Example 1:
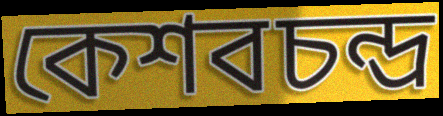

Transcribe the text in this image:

কেশবচন্দ্র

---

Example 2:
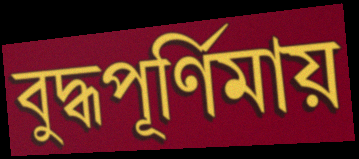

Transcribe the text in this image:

বুদ্ধপূর্ণিমায়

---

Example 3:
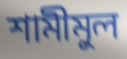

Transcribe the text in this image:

শামীমুল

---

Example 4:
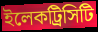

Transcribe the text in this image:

ইলেকট্রিসিটি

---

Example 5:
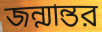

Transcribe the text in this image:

জন্মান্তর